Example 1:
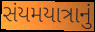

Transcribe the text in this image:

સંયમયાત્રાનું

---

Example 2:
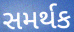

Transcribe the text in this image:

સમર્થક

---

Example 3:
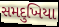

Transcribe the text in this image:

સમદુખિયા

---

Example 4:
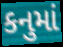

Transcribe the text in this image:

કનુમાં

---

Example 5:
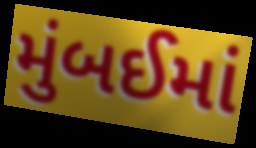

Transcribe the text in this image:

મુંબઈમાં